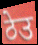
ठेउ